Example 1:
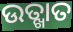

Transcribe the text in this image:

ଉତ୍ଖାତ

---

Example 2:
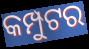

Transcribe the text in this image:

କମ୍ପୁଟର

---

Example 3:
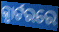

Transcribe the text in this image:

କ୍ଵାର୍ଟରରେ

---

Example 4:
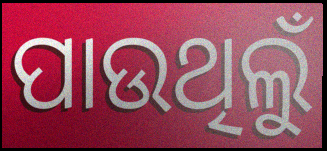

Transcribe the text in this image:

ପାଉଥିଲୁଁ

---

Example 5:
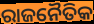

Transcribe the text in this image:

ରାଜନୈତିକ